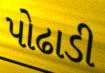
પોઢાડી